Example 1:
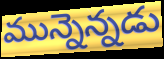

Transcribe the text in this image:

మున్నెన్నడు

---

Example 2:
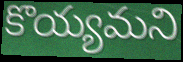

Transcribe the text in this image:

కొయ్యమని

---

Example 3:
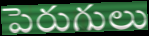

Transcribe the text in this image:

పెరుగులు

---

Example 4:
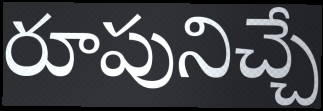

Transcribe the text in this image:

రూపునిచ్చే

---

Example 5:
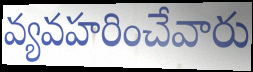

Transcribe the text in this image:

వ్యవహరించేవారు